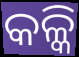
କଳ୍କି